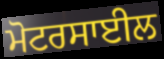
ਮੋਟਰਸਾਈਲ